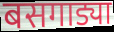
बसगाड्या